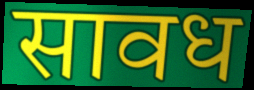
सावध